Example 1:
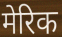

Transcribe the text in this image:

मेरिक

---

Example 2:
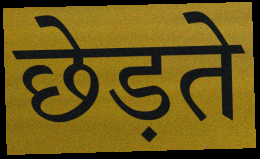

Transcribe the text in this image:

छेड़ते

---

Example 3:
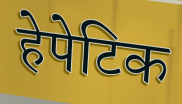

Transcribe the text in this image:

हेपेटिक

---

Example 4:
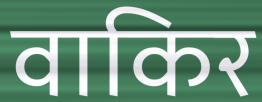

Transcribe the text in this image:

वाकिर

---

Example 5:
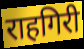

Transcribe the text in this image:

राहगिरी